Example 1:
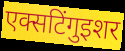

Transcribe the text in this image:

एक्सटिंगुइशर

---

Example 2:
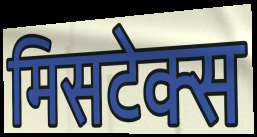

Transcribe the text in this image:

मिसटेक्स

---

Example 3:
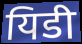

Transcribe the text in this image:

यिडी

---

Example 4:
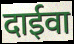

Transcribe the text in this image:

दाईवा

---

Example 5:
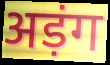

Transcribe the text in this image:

अड़ंग